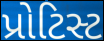
પ્રોટિસ્ટ